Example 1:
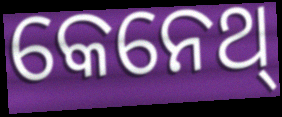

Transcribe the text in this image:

କେନେଥ୍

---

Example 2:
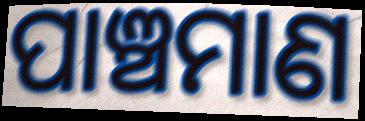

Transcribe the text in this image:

ପାଞ୍ଚମାଣ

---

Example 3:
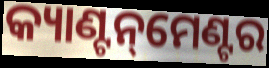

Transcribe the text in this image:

କ୍ୟାଣ୍ଟନ୍‌ମେଣ୍ଟର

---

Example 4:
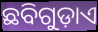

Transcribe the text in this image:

ଛବିଗୁଡ଼ାଏ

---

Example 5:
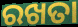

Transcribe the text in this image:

ରଖତା